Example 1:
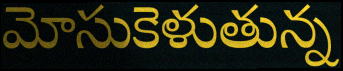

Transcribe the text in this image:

మోసుకెళుతున్న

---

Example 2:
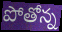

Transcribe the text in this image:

పోతోన్న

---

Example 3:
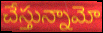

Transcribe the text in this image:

చేస్తున్నామో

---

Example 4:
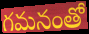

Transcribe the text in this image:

గమనంతో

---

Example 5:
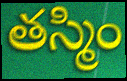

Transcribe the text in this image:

తస్మిం